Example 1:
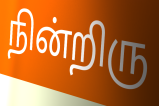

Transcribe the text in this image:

நின்றிரு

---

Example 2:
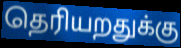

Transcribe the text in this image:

தெரியறதுக்கு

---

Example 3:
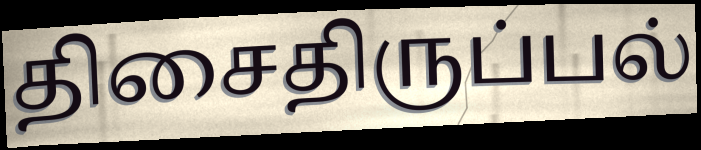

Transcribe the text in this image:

திசைதிருப்பல்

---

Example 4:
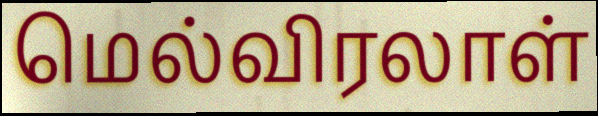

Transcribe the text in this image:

மெல்விரலாள்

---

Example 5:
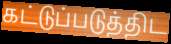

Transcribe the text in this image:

கட்டுப்படுத்திட